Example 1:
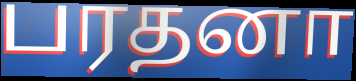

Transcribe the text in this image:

பரதனா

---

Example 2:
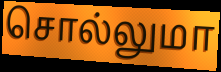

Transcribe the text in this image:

சொல்லுமா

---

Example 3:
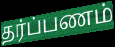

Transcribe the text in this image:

தர்ப்பணம்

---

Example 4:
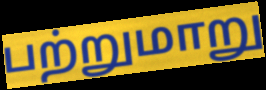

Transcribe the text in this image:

பற்றுமாறு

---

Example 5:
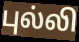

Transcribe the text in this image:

புல்லி